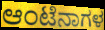
ಆಂಟೆನಾಗಳ